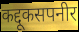
कद्दूकसपनीर